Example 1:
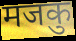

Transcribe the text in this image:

मजकु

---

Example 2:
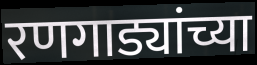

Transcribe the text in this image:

रणगाड्यांच्या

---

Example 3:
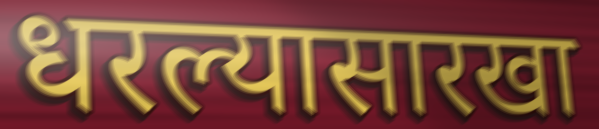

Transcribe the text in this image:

धरल्यासारखा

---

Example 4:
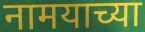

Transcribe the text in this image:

नामयाच्या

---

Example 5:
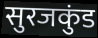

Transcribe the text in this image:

सुरजकुंड